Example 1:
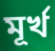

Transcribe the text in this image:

মূৰ্খ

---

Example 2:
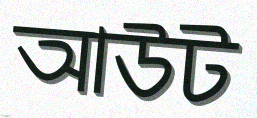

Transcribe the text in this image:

আউট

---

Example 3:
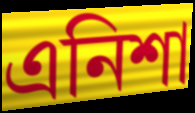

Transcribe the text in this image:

এনিশা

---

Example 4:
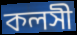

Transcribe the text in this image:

কলসী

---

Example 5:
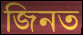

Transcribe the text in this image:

জিনত